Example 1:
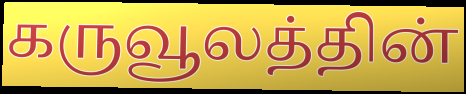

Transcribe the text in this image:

கருவூலத்தின்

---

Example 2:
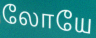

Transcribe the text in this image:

லோயே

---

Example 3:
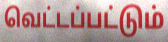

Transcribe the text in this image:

வெட்டப்பட்டும்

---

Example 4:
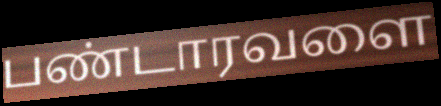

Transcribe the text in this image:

பண்டாரவளை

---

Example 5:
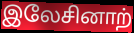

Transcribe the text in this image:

இலேசினாற்